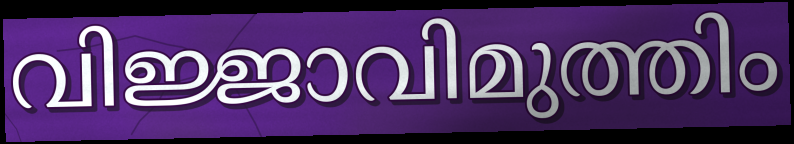
വിജ്ജാവിമുത്തിം